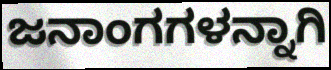
ಜನಾಂಗಗಳನ್ನಾಗಿ